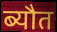
ब्यौत